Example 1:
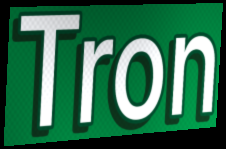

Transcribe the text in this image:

Tron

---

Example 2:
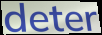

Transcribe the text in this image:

deter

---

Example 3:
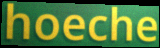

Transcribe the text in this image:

hoeche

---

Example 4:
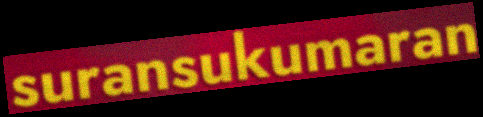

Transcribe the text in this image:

suransukumaran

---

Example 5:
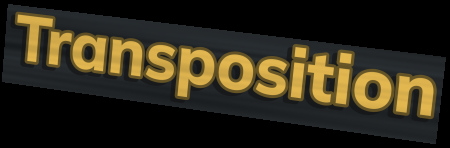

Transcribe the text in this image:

Transposition